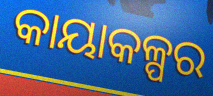
କାୟାକଳ୍ପର